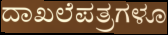
ದಾಖಲೆಪತ್ರಗಳೂ